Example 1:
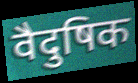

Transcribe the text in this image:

वैदुषिक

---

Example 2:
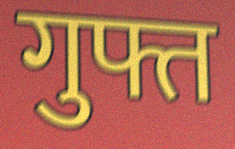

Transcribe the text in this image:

गुफ्त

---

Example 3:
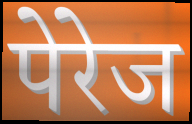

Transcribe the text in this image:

पेरेज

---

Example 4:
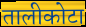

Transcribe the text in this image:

तालीकोटा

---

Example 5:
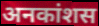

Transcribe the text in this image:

अनकांशस